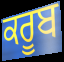
ਕਰੂਬ